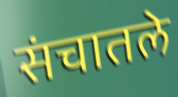
संचातले